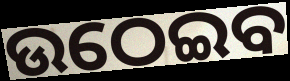
ଉଠେଇବ